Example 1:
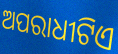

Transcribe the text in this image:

ଅପରାଧୀଟିଏ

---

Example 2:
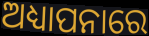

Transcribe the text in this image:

ଅଧ୍ୟାପନାରେ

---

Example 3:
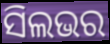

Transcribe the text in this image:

ସିଲଭର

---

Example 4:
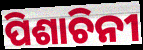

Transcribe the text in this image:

ପିଶାଚିନୀ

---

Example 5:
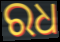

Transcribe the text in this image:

ରଧ